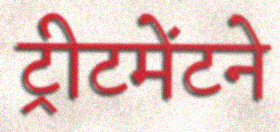
ट्रीटमेंटने